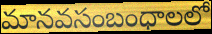
మానవసంబంధాలలో